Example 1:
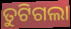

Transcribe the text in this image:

ତୁଟିଗଲା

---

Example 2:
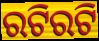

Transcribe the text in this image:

ରଟିରଟି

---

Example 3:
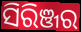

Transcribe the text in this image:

ସିରିଞ୍ଜର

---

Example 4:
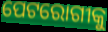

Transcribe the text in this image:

ପେଟରୋଗୀକୁ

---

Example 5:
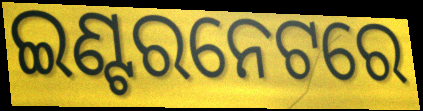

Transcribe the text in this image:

ଇଣ୍ଟରନେଟରେ